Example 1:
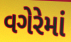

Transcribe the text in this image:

વગેરેમાં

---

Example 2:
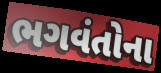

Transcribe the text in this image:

ભગવંતોના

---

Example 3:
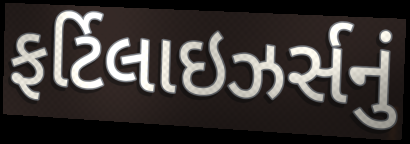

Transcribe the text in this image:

ફર્ટિલાઇઝર્સનું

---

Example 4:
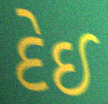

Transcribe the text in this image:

દેઈ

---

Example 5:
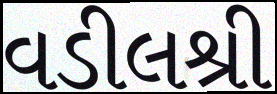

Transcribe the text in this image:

વડીલશ્રી